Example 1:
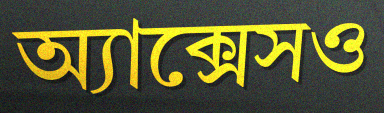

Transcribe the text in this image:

অ্যাক্সেসও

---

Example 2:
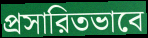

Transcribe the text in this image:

প্রসারিতভাবে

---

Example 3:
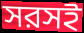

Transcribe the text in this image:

সরসই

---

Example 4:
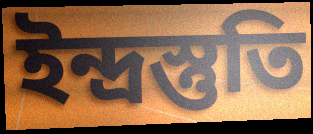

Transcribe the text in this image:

ইন্দ্রস্তুতি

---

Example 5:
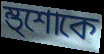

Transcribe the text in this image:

ম্ত্শোকে